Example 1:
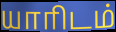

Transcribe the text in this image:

யாரிடம்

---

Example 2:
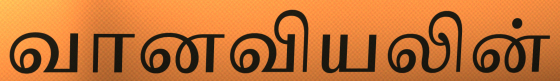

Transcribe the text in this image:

வானவியலின்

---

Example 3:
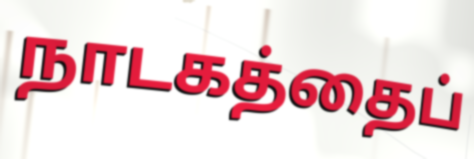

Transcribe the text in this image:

நாடகத்தைப்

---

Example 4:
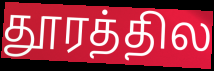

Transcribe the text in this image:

தூரத்தில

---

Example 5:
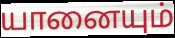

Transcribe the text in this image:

யானையும்